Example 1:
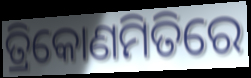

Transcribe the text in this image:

ତ୍ରିକୋଣମିତିରେ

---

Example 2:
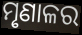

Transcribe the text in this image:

ମୃଣାଳର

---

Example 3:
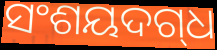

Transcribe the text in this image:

ସଂଶୟଦଗ୍‌ଧ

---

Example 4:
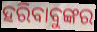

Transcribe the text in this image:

ହରିବାବୁଙ୍କର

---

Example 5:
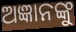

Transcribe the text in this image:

ଅଜ୍ଞାନଙ୍କୁ